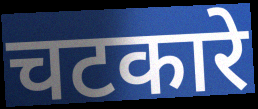
चटकारे